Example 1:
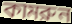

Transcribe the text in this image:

কামরুন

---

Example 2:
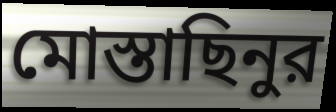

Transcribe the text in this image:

মোস্তাছিনুর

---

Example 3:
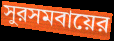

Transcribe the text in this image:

সুরসমবায়ের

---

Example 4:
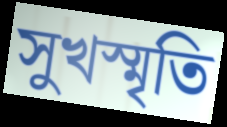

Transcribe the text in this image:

সুখস্মৃতি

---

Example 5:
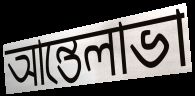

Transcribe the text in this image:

আন্তেলাভা